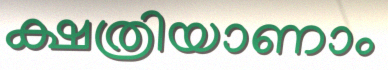
ക്ഷത്രിയാണാം